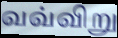
வவ்விறு